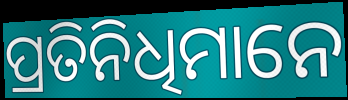
ପ୍ରତିନିଧିମାନେ